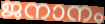
ജനാനം